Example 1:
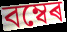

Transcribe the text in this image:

বম্বেৰ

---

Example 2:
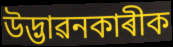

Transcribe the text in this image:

উদ্ভাৱনকাৰীক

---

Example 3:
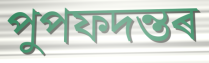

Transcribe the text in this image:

পুপফদন্তৰ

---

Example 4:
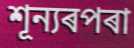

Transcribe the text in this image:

শূন্যৰপৰা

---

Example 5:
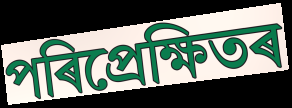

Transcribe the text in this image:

পৰিপ্ৰেক্ষিতৰ